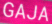
GAJA